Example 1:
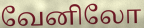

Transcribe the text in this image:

வேனிலோ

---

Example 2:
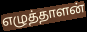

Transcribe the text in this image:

எழுத்தாளன்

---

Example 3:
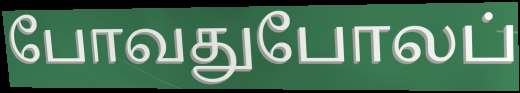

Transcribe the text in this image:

போவதுபோலப்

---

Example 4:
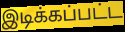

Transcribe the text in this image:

இடிக்கப்பட்ட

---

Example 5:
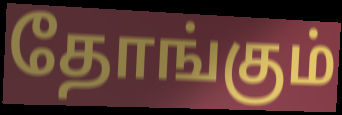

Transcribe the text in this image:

தோங்கும்